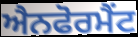
ਐਨਫੋਰਮੈਂਟ